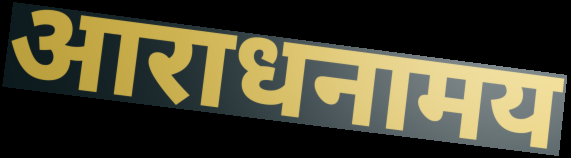
आराधनामय